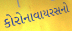
કોરોનાવાયરસનો